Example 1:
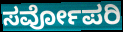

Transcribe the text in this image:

ಸರ್ವೋಪರಿ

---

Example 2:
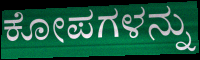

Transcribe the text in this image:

ಕೋಪಗಳನ್ನು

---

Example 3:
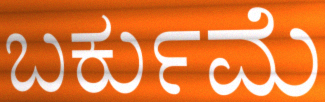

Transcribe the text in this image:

ಬರ್ಕುಮೆ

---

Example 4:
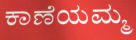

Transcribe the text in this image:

ಕಾಣೆಯಮ್ಮ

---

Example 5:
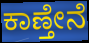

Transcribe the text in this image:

ಕಾಣ್ತೇನೆ